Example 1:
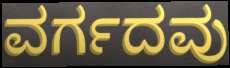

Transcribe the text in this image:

ವರ್ಗದವು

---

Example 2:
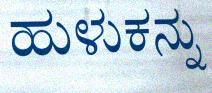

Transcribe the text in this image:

ಹುಳುಕನ್ನು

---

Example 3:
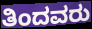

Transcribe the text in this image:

ತಿಂದವರು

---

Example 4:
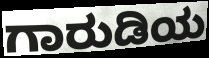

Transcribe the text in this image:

ಗಾರುಡಿಯ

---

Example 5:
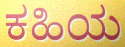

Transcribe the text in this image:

ಕಹಿಯ